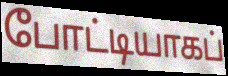
போட்டியாகப்